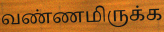
வண்ணமிருக்க